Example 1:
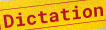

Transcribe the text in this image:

Dictation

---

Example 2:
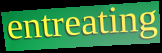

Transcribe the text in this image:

entreating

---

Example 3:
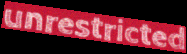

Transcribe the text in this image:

unrestricted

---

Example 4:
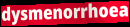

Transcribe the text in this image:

dysmenorrhoea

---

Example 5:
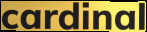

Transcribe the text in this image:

cardinal